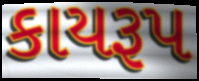
કાયરૂપ